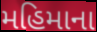
મહિમાના